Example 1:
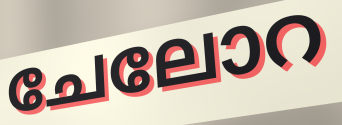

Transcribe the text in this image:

ചേലോറ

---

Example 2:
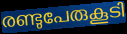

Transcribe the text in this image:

രണ്ടുപേരുകൂടി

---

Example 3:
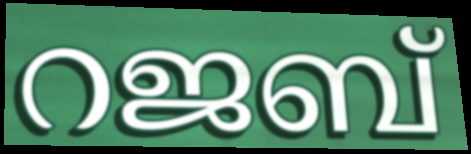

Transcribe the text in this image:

റജബ്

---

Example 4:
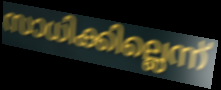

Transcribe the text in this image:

സാധിക്കില്ലെന്ന്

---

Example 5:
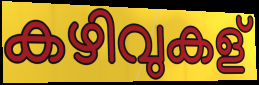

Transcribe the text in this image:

കഴിവുകള്